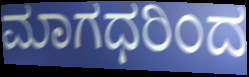
ಮಾಗಧರಿಂದ